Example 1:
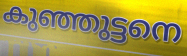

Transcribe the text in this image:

കുഞ്ഞുട്ടനെ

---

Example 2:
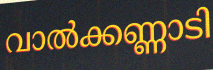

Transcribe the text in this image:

വാൽക്കണ്ണാടി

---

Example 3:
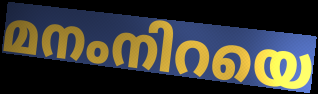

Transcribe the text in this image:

മനംനിറയെ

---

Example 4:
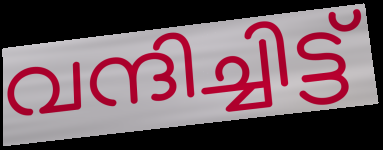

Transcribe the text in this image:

വന്ദിച്ചിട്ട്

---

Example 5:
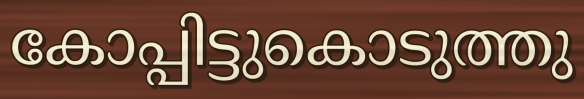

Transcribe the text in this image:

കോപ്പിട്ടുകൊടുത്തു